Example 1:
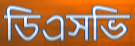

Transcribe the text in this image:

ডিএসভি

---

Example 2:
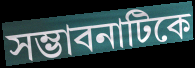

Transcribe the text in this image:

সম্ভাবনাটিকে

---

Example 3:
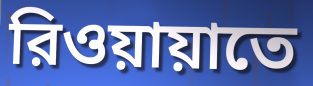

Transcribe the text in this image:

রিওয়ায়াতে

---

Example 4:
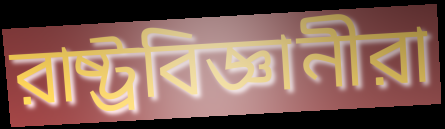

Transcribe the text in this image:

রাষ্ট্রবিজ্ঞানীরা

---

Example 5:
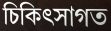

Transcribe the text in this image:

চিকিৎসাগত